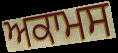
ਅਕਾਮਸ